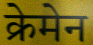
क्रेमेन